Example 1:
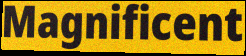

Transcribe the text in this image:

Magnificent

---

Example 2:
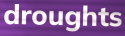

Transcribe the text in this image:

droughts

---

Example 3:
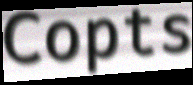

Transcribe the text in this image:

Copts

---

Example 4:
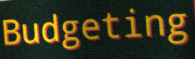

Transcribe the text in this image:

Budgeting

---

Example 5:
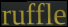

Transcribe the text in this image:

ruffle